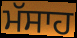
ਮੱਸਾਹ